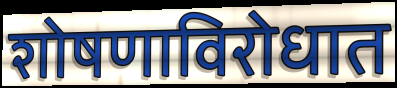
शोषणाविरोधात